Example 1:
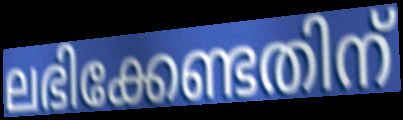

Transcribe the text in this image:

ലഭിക്കേണ്ടതിന്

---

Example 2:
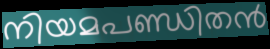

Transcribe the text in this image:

നിയമപണ്ഡിതൻ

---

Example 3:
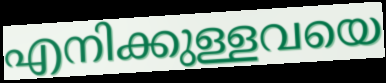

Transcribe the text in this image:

എനിക്കുള്ളവയെ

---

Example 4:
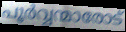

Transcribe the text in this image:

പൂർവ്വന്മാരോട്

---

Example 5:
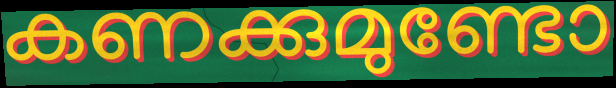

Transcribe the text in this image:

കണക്കുമുണ്ടോ